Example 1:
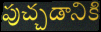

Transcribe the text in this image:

పుచ్చడానికి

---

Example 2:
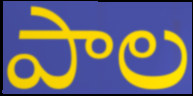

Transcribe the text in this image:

పాల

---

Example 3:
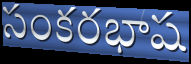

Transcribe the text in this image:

సంకరభాష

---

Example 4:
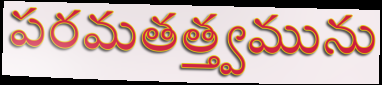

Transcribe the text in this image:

పరమతత్త్వమును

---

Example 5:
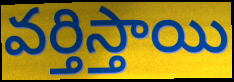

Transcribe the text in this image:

వర్తిస్తాయి